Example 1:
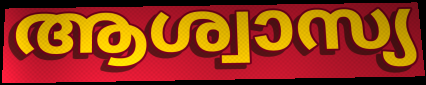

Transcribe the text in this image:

ആശ്വാസ്യ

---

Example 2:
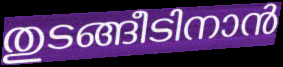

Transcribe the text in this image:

തുടങ്ങീടിനാൻ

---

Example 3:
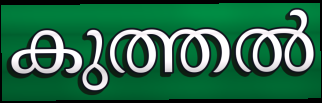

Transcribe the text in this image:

കുത്തൽ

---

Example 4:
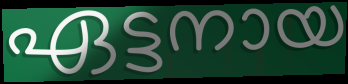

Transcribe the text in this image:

ഏട്ടനായ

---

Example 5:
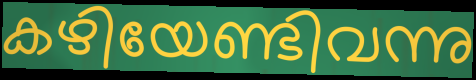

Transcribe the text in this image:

കഴിയേണ്ടിവന്നു